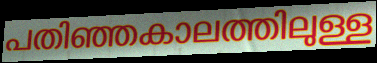
പതിഞ്ഞകാലത്തിലുള്ള